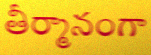
తీర్మానంగా